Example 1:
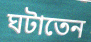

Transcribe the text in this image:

ঘটাতেন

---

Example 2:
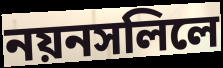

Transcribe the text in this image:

নয়নসলিলে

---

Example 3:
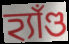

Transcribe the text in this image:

হ্যাঁণ্ড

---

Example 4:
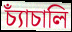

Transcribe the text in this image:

চ্যাঁচালি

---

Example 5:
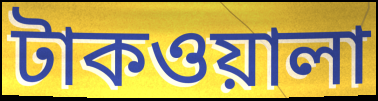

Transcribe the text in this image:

টাকওয়ালা